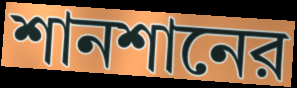
শানশানের